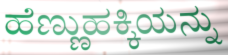
ಹೆಣ್ಣುಹಕ್ಕಿಯನ್ನು